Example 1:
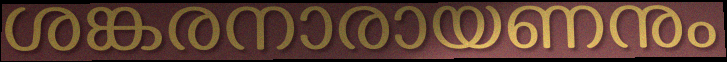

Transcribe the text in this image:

ശങ്കരനാരായണനും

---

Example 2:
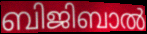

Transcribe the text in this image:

ബിജിബാൽ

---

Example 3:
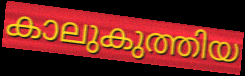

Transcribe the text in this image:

കാലുകുത്തിയ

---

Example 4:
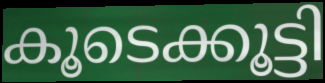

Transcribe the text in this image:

കൂടെക്കൂട്ടി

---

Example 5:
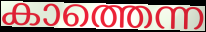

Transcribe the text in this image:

കാത്തെന്ന